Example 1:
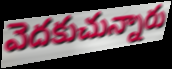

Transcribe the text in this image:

వెదకుచున్నారు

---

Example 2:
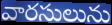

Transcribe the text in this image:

వారసులును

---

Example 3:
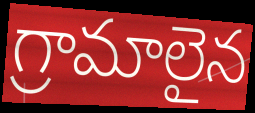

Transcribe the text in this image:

గ్రామాలైన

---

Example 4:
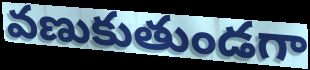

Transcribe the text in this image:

వణుకుతుండగా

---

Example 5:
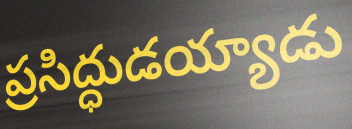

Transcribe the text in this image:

ప్రసిద్ధుడయ్యాడు